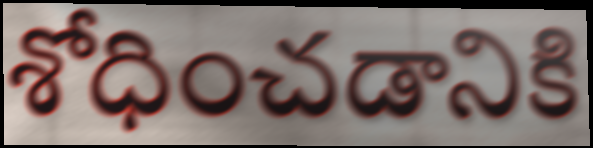
శోధించడానికి